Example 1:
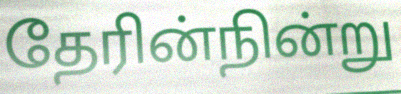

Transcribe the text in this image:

தேரின்நின்று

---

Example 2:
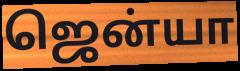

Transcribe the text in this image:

ஜென்யா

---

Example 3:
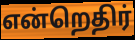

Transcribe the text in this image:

என்றெதிர்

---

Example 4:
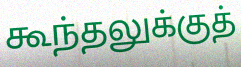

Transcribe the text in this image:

கூந்தலுக்குத்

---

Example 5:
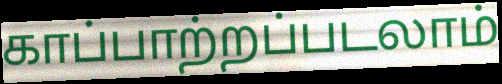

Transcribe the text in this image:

காப்பாற்றப்படலாம்